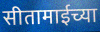
सीतामाईच्या